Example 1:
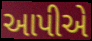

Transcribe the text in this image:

આપીએ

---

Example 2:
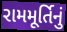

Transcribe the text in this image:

રામમૂર્તિનું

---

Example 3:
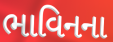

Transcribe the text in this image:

ભાવિનના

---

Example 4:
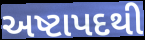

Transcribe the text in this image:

અષ્ટાપદથી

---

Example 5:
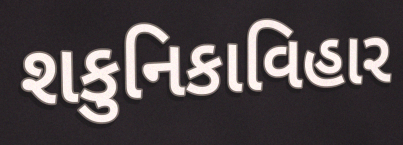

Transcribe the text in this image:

શકુનિકાવિહાર